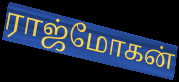
ராஜ்மோகன்